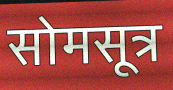
सोमसूत्र